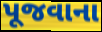
પૂજવાના